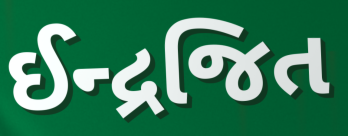
ઈન્દ્રજિત